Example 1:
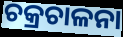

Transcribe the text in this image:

ଚକ୍ରଚାଳନା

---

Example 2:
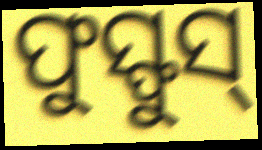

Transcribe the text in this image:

ଫୁସ୍ଫୁସ୍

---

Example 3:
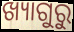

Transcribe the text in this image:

ଖ୍ୟାଗୁରୁ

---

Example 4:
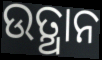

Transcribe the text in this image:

ଉତ୍ଥାନ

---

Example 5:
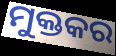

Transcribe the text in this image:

ମୁକ୍ତକର